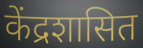
केंद्रशासित